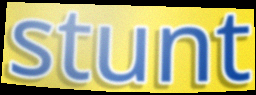
stunt